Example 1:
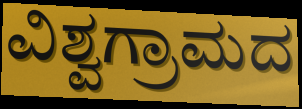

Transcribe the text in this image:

ವಿಶ್ವಗ್ರಾಮದ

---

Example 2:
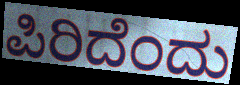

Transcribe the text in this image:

ಪಿರಿದೆಂದು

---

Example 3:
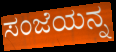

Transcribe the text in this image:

ಸಂಜೆಯನ್ನ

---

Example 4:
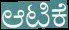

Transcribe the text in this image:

ಆಟಿಕೆ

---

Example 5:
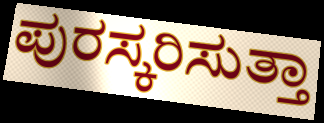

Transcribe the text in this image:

ಪುರಸ್ಕರಿಸುತ್ತಾ